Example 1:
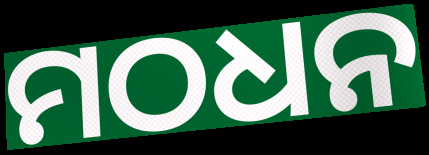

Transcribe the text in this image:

ମଠଧନ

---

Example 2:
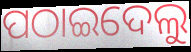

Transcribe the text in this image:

ପଠାଇଦେଲୁ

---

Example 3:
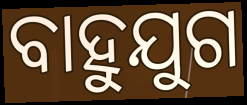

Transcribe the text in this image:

ବାହୁଯୁଗ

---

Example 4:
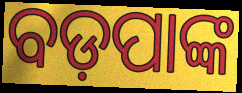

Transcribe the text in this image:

ବଡ଼ପାଙ୍କ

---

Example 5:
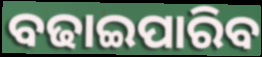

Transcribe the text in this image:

ବଢାଇପାରିବ